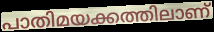
പാതിമയക്കത്തിലാണ്